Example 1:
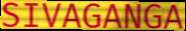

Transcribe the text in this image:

SIVAGANGA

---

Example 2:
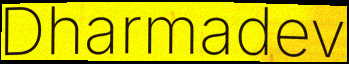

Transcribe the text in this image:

Dharmadev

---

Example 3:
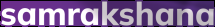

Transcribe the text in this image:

samrakshana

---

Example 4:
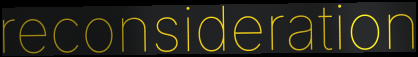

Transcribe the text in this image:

reconsideration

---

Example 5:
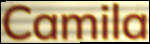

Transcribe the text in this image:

Camila